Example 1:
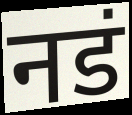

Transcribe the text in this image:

नडं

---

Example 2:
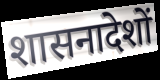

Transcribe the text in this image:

शासनादेशों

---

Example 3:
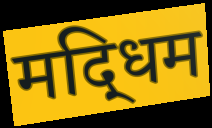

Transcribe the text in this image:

मद्धिम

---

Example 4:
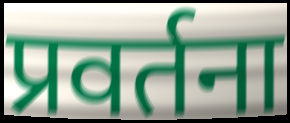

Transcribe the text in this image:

प्रवर्तना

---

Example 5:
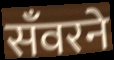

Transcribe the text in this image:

सँवरने